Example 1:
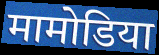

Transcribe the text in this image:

मामोडिया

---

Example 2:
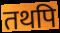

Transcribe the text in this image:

तथपि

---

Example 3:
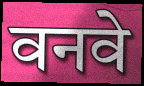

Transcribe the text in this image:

वनवे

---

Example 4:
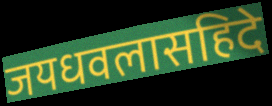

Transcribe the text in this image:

जयधवलासहिदे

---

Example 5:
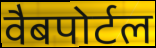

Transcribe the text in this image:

वैबपोर्टल